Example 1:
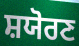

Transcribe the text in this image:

ਸ਼ਯੋਰਣ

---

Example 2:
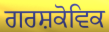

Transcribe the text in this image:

ਗਰਸ਼ਕੋਵਿਕ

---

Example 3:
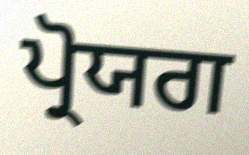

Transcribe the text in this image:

ਪ੍ਰੋਯਗ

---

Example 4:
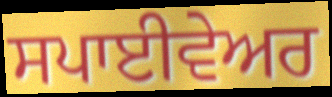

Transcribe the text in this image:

ਸਪਾਈਵੇਅਰ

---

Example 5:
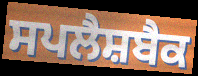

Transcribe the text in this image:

ਸਪਲੈਸ਼ਬੈਕ